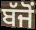
ਬੱਜੋਂ